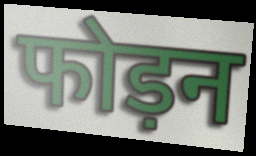
फोड़न